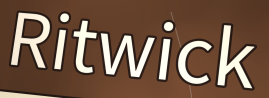
Ritwick